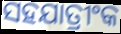
ସହଯାତ୍ରୀଂକ